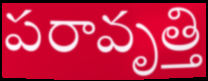
పరావృత్తి